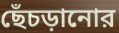
ছেঁচড়ানোর